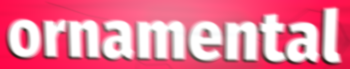
ornamental